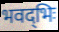
भवद्‌भिः